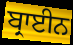
ਬ੍ਰਾਈਨ